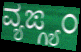
ವ್ಯಙ್ಗ್ಯಂ